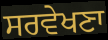
ਸਰਵੇਖਣਾ